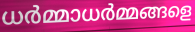
ധർമ്മാധർമ്മങ്ങളെ